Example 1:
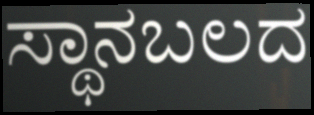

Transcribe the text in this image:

ಸ್ಥಾನಬಲದ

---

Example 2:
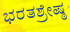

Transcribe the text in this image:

ಭರತಶ್ರೇಷ್ಠ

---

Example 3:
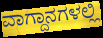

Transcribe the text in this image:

ವಾಗ್ದಾನಗಳಲ್ಲಿ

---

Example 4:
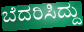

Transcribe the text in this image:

ಬೆದರಿಸಿದ್ದು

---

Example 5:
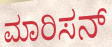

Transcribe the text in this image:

ಮಾರಿಸನ್